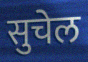
सुचेल